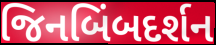
જિનબિંબદર્શન